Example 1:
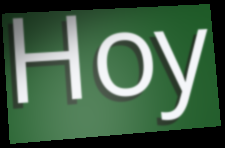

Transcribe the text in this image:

Hoy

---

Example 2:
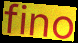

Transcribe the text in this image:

fino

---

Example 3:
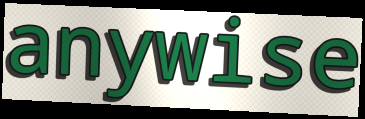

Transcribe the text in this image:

anywise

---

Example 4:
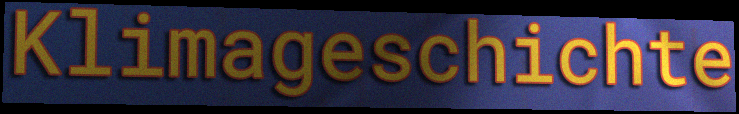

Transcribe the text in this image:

Klimageschichte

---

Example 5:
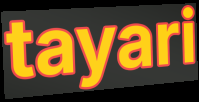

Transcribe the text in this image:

tayari